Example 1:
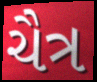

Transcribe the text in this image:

ચૈત્ર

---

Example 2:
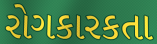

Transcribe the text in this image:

રોગકારકતા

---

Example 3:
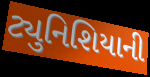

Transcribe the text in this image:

ટ્યુનિશિયાની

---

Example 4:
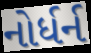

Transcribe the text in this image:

નોર્ધર્ન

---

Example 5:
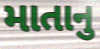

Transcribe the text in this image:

માતાનુ